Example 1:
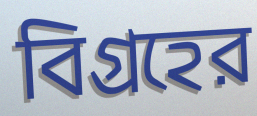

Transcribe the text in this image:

বিগ্রহের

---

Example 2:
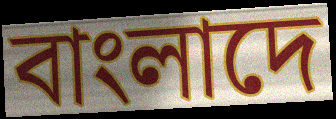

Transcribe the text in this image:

বাংলাদে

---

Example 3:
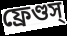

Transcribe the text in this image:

ফ্রেণ্ডস্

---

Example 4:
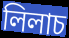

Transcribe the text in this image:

লিলাচ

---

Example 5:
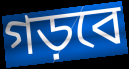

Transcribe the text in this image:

গড়বে